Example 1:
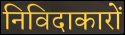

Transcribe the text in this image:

निविदाकारों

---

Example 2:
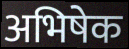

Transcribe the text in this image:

अभिषेक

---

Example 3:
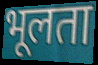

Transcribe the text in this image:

भूलता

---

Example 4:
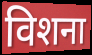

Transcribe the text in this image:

विशना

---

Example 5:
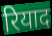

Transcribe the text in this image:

रियाद